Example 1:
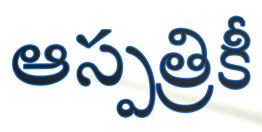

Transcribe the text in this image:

ఆస్పత్రికీ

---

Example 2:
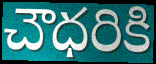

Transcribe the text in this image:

చౌధరికి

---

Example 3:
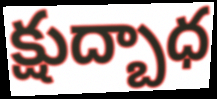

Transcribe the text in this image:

క్షుద్బాధ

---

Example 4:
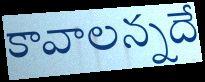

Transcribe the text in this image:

కావాలన్నదే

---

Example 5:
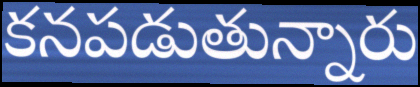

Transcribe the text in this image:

కనపడుతున్నారు